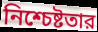
নিশ্চেষ্টতার